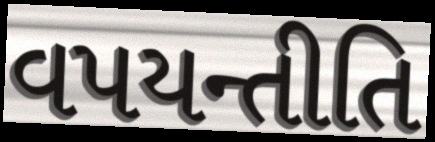
વપયન્તીતિ